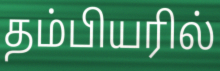
தம்பியரில்